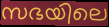
സഭയിലെ